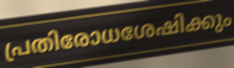
പ്രതിരോധശേഷിക്കും